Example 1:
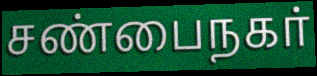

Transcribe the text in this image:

சண்பைநகர்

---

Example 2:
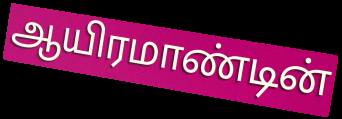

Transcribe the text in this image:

ஆயிரமாண்டின்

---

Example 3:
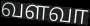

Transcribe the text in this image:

வளவா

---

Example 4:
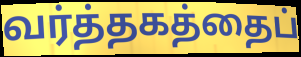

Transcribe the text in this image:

வர்த்தகத்தைப்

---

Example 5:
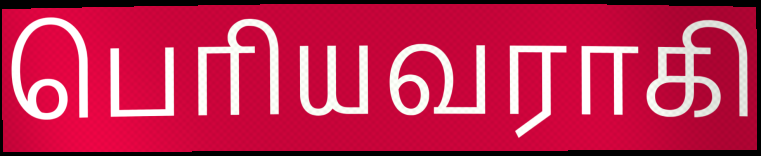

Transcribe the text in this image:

பெரியவராகி